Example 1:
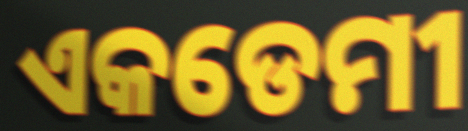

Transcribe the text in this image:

ଏକଡେମୀ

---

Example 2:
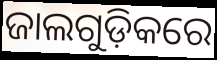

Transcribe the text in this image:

ଜାଲଗୁଡ଼ିକରେ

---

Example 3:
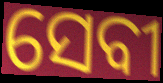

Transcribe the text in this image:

ସେବୀ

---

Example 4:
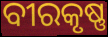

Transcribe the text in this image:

ବୀରକୃଷ୍ଣ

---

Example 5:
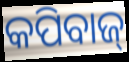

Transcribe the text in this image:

କପିବାଜ୍